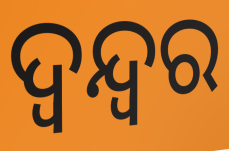
ଦ୍ଵନ୍ଦ୍ୱର